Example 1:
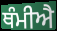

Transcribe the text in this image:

ਥੰਮੀਐ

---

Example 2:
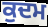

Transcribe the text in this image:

ਕੁਦਮ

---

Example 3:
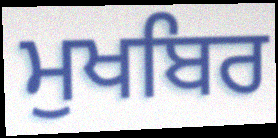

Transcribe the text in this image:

ਮੁਖਬਿਰ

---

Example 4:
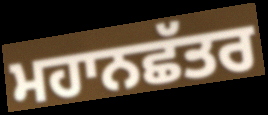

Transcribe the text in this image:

ਮਹਾਨਛੱਤਰ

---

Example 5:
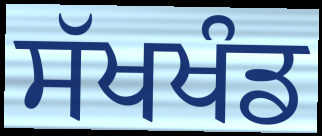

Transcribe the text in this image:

ਸੱਖਖੰਡ